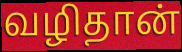
வழிதான்